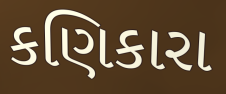
કણિકારા